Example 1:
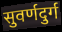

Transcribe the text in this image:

सुवर्णदुर्ग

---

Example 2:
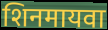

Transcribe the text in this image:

शिनमायवा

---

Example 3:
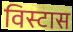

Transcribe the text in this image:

विस्टास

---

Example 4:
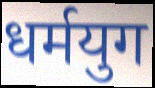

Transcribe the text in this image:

धर्मयुग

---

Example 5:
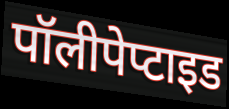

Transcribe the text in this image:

पॉलीपेप्टाइड